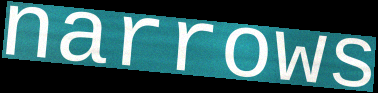
narrows